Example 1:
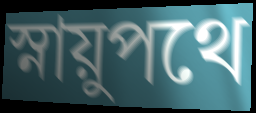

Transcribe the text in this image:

স্নায়ুপথে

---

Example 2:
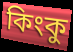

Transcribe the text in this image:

কিংকু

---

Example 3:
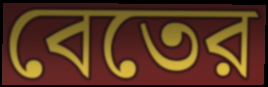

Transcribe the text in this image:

বেতের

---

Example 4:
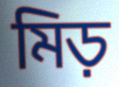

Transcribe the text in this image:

মিড়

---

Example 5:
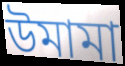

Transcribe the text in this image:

উমামা